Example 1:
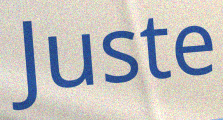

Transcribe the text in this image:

Juste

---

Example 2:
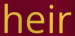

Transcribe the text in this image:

heir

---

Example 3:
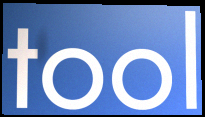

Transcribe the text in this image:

tool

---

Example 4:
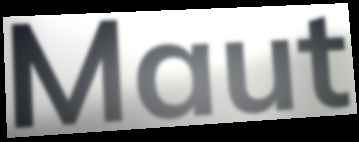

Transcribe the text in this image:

Maut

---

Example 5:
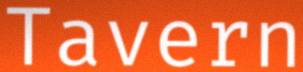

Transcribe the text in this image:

Tavern